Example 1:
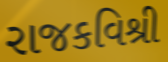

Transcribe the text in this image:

રાજકવિશ્રી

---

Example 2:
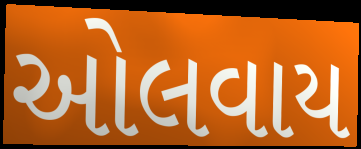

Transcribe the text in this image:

ઓલવાય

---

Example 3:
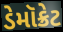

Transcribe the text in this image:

ડેમૉક્રેટ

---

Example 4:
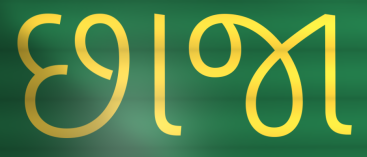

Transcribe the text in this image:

છાજા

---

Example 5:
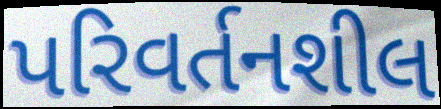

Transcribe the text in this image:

પરિવર્તનશીલ